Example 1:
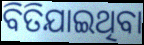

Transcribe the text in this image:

ବିତିଯାଇଥିବା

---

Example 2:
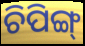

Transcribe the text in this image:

ଚିପିଙ୍ଗ୍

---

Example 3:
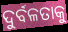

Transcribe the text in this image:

ଦୁର୍ବଳତାକୁ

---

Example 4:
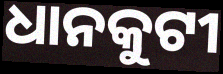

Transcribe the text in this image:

ଧାନକୁଟୀ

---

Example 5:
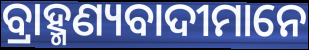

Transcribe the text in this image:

ବ୍ରାହ୍ମଣ୍ୟବାଦୀମାନେ